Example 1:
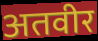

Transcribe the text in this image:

अतवीर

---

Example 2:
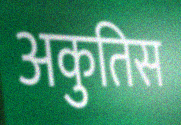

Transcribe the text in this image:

अकुतिस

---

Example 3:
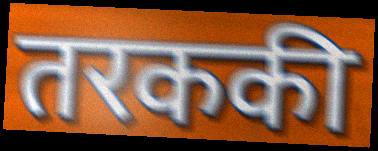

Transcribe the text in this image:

तरककी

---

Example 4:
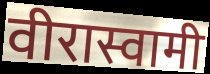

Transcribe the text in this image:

वीरास्वामी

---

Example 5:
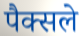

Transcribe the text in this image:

पैक्सले